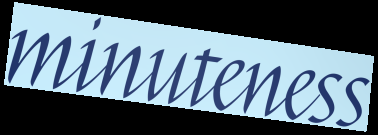
minuteness